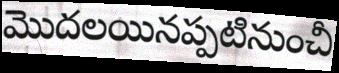
మొదలయినప్పటినుంచీ